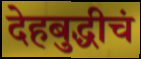
देहबुद्धीचं